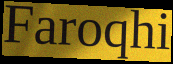
Faroqhi